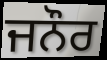
ਜਨੌਰ